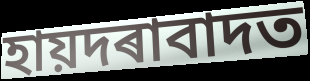
হায়দৰাবাদত